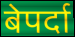
बेपर्दा